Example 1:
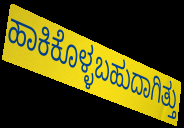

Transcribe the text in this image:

ಹಾಕಿಕೊಳ್ಳಬಹುದಾಗಿತ್ತು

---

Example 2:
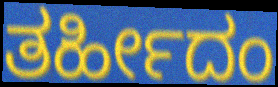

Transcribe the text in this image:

ತರ್ಹೀದಂ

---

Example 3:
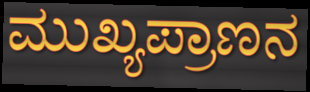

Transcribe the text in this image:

ಮುಖ್ಯಪ್ರಾಣನ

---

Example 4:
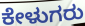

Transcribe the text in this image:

ಕೇಳುಗರು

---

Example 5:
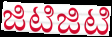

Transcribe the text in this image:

ಜಿಟಿಜಿಟಿ